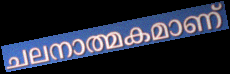
ചലനാത്മകമാണ്